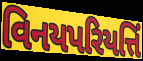
વિનયપરિયત્તિં